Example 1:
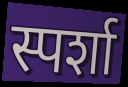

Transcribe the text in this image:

स्पर्शा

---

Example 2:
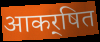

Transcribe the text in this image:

आकर्षित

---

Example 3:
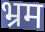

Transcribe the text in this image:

भ्रम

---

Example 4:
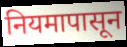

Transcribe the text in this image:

नियमापासून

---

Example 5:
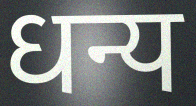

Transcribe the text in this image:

धन्य